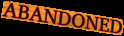
ABANDONED